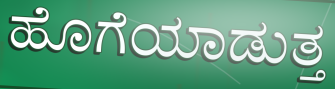
ಹೊಗೆಯಾಡುತ್ತ